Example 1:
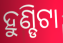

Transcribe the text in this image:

ହୁଣ୍ଡିଟା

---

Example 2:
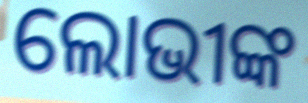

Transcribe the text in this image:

ଲୋଭୀଙ୍କ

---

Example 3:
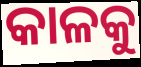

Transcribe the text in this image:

କାଳକୁ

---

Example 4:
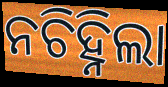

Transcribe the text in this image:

ନଚିହ୍ନିଲା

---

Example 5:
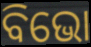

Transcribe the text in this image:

ବିଭୋ